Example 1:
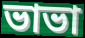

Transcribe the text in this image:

ভাভা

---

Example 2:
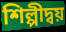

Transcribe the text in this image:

শিল্পীদ্বয়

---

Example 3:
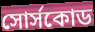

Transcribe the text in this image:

সোর্সকোড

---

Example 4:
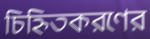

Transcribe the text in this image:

চিহ্নিতকরণের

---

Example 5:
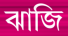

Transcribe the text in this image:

ঝাজি